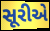
સૂરીએ